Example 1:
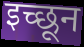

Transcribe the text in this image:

इच्छून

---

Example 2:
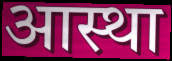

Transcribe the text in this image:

आस्था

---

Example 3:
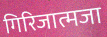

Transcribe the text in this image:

गिरिजात्मजा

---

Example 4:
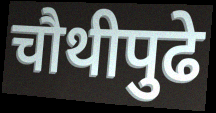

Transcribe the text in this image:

चौथीपुढे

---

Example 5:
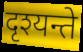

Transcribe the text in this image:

दृश्यन्ते